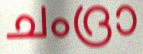
ചംദ്രാ